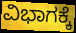
ವಿಭಾಗಕ್ಕೆ